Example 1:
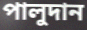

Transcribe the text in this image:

পালুদান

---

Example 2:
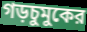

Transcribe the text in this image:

গড়চুমুকের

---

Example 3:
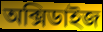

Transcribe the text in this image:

অক্সিডাইজ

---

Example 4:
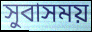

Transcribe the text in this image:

সুবাসময়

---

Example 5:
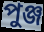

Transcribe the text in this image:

পুঞ্জ